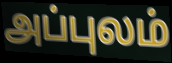
அப்புலம்